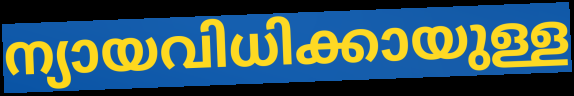
ന്യായവിധിക്കായുള്ള